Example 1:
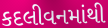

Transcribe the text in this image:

કદલીવનમાંથી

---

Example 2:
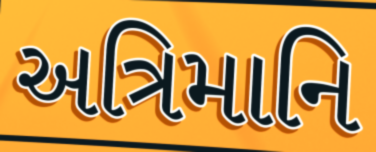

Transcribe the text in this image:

અત્રિમાનિ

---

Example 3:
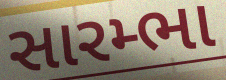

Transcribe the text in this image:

સારમ્ભા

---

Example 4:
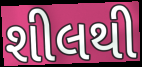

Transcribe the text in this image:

શીલથી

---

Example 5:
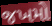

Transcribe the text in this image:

જખમો